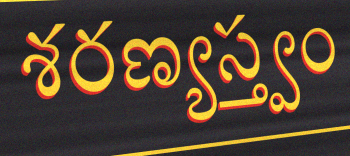
శరణ్యస్త్వం